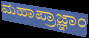
ಮಹಾಪ್ರಾಜ್ಞಾಂ